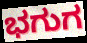
ಭಗುಗ